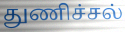
துணிச்சல்